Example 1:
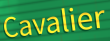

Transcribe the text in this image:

Cavalier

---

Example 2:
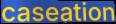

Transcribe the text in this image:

caseation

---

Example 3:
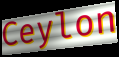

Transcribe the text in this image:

Ceylon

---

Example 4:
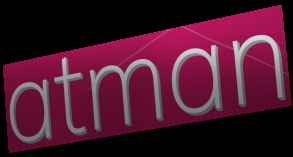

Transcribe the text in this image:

atman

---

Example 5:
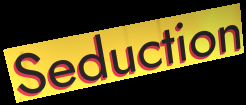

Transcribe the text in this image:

Seduction